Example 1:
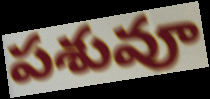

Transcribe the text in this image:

పశువూ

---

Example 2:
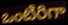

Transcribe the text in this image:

ఒంటిరిగా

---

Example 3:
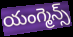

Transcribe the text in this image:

యంగ్మెన్స్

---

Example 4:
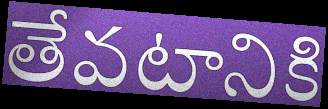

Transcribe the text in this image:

తేవటానికి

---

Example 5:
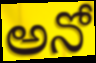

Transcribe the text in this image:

అనో